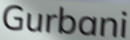
Gurbani